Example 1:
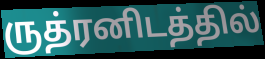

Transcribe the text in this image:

ருத்ரனிடத்தில்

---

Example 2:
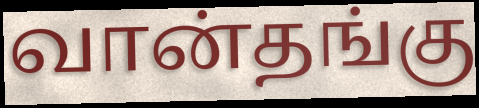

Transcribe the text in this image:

வான்தங்கு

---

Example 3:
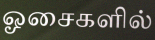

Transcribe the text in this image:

ஓசைகளில்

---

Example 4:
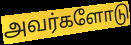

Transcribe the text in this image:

அவர்களோடு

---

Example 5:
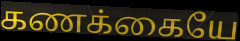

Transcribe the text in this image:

கணக்கையே